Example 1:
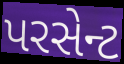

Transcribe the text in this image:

પરસેન્ટ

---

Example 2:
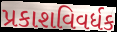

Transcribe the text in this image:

પ્રકાશવિવર્ધક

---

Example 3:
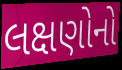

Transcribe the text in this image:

લક્ષણોનો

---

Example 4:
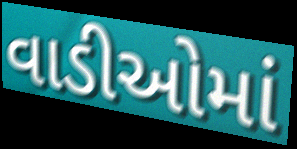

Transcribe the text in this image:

વાડીઓમાં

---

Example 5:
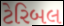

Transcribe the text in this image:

ટેરિબલ